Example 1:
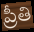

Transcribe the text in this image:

ప్రీతి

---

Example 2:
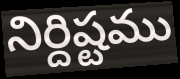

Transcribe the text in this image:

నిర్దిష్టము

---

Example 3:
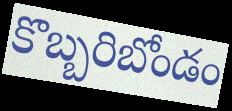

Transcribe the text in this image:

కొబ్బరిబోండం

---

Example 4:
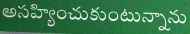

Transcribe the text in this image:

అసహ్యించుకుంటున్నాను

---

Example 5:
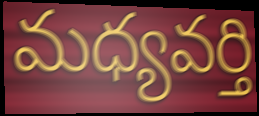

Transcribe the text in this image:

మధ్యవర్తి